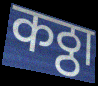
कठ्ठा